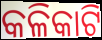
କଳିକାଟି